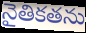
నైతికతను